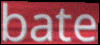
bate